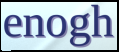
enogh